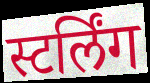
स्टर्लिंग